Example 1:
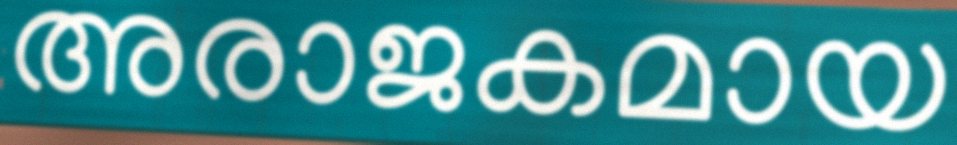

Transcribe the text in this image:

അരാജകമായ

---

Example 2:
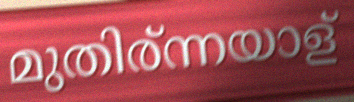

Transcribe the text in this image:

മുതിര്ന്നയാള്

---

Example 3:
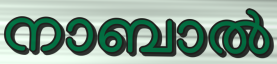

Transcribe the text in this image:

നാബാൽ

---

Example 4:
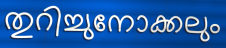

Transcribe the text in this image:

തുറിച്ചുനോക്കലും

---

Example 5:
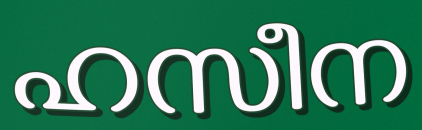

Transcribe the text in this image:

ഹസീന